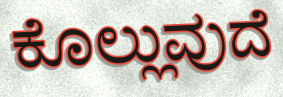
ಕೊಲ್ಲುವುದೆ